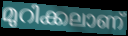
മുറിക്കലാണ്